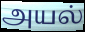
அயல்